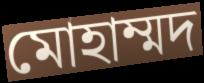
মোহাম্মদ